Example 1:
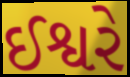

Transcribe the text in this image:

ઈશ્વરે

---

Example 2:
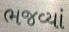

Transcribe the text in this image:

ભજવ્યાં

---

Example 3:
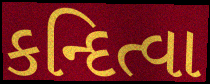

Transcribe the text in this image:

કન્દિત્વા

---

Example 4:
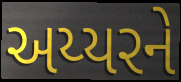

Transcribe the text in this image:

અય્યરને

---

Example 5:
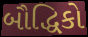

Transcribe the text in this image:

બૌદ્ધિકો